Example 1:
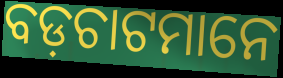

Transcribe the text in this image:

ବଡ଼ଚାଟମାନେ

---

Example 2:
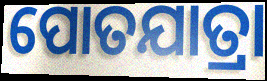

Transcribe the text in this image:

ପୋତଯାତ୍ରା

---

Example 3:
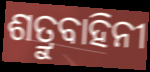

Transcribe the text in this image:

ଶତ୍ରୁବାହିନୀ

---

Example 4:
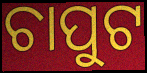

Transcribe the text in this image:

ଚାପୁଟ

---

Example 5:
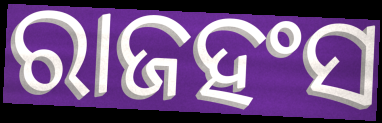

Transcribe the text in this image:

ରାଜହଂସ